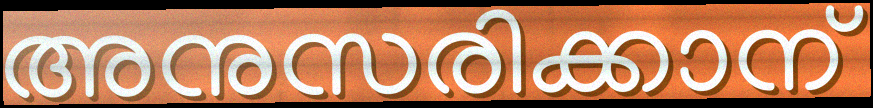
അനുസരിക്കാന്